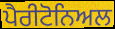
ਪੈਰੀਟੋਨਿਅਲ